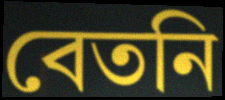
বেতনি